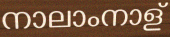
നാലാംനാള്